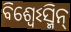
ବିଶ୍ଵେଽସ୍ମିନ୍